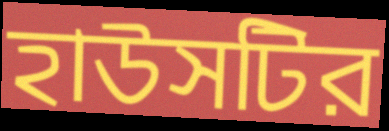
হাউসটির